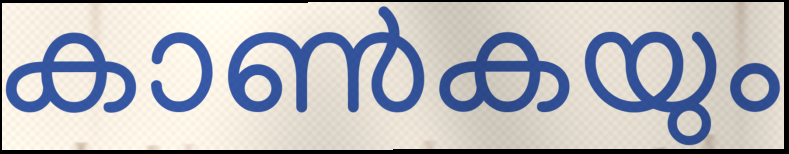
കാൺകയും